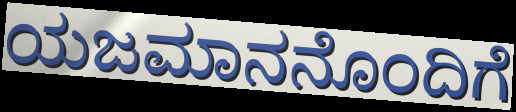
ಯಜಮಾನನೊಂದಿಗೆ